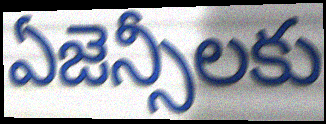
ఏజెన్సీలకు